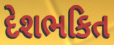
દેશભકિત